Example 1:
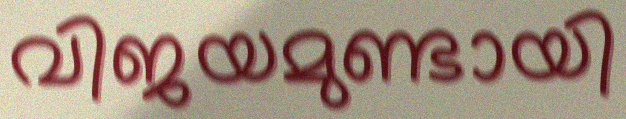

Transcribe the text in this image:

വിജയമുണ്ടായി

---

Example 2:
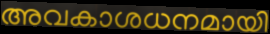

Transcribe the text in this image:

അവകാശധനമായി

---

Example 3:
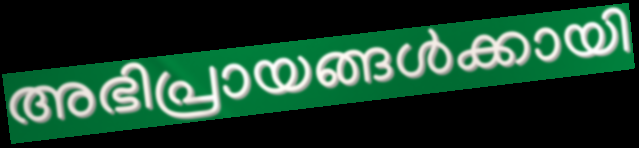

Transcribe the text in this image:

അഭിപ്രായങ്ങൾക്കായി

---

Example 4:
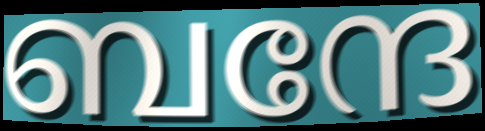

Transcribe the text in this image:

ബന്ദേ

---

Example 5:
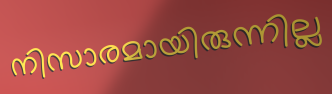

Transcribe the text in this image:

നിസാരമായിരുന്നില്ല